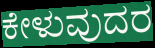
ಕೇಳುವುದರ